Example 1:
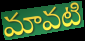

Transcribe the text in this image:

మావటి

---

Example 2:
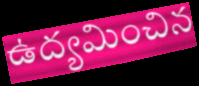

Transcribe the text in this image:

ఉద్యమించిన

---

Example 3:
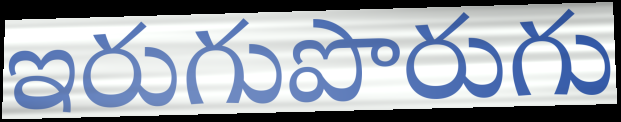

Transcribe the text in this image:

ఇరుగుపొరుగు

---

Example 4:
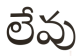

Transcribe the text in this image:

లేవు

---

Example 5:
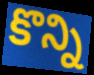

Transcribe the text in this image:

కొన్ని